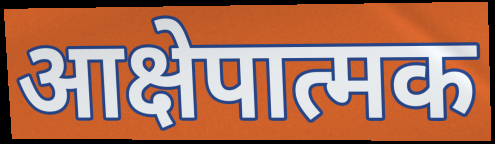
आक्षेपात्मक